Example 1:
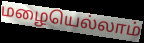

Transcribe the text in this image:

மழையெல்லாம்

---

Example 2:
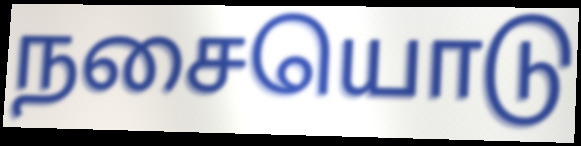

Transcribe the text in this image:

நசையொடு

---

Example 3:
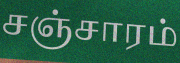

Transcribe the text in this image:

சஞ்சாரம்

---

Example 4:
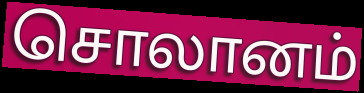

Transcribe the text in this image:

சொலானம்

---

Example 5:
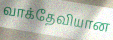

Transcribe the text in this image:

வாக்தேவியான